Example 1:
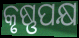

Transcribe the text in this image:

କୃଷ୍ଣପକ୍ଷ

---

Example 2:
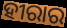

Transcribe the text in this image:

ହୀରାର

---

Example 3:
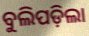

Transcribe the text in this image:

ବୁଲିପଡ଼ିଲା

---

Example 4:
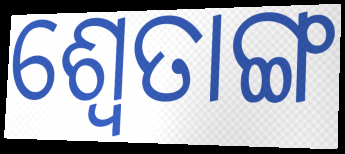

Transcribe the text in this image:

ଶ୍ୱେତାଙ୍ଗ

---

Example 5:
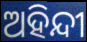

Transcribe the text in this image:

ଅହିନ୍ଦୀ